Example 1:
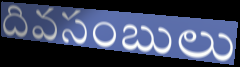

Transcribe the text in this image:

దివసంబులు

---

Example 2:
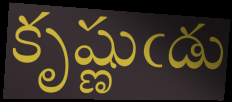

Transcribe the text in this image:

కృష్ణుఁడు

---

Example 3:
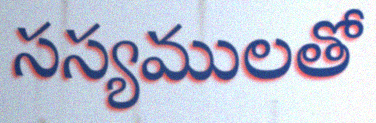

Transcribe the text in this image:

సస్యములతో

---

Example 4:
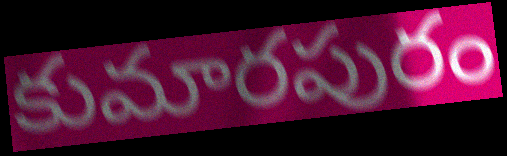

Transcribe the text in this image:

కుమారపురం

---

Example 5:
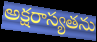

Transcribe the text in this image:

అక్షరాస్యతను